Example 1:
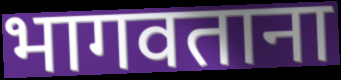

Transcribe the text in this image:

भागवताना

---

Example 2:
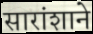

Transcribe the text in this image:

सारांशाने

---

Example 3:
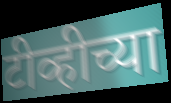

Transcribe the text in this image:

टीव्हीच्या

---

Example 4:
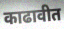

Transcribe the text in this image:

काढावीत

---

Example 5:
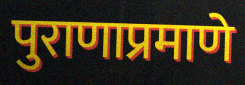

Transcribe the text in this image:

पुराणाप्रमाणे